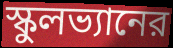
স্কুলভ্যানের